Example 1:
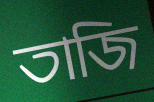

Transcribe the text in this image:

তাজি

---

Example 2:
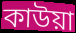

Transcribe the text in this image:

কাউয়া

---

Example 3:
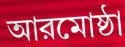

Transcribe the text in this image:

আরমোষ্ঠা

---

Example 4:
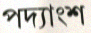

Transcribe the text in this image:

পদ্যাংশ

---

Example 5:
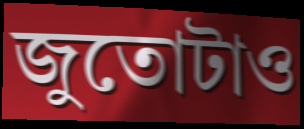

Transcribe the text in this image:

জুতোটাও